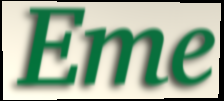
Eme